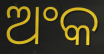
ଅଂକ